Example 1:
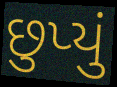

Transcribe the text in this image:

છુપ્યું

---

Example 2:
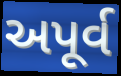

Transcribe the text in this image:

અપૂર્વ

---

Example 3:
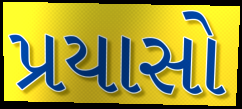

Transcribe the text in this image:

પ્રયાસો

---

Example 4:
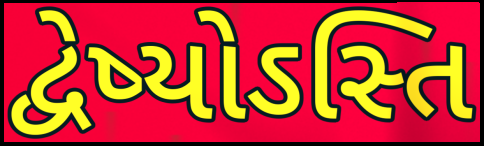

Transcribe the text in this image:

દ્વેષ્યોઽસ્તિ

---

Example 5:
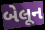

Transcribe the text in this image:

બેલૂન